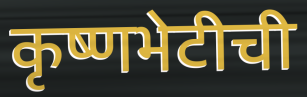
कृष्णभेटीची